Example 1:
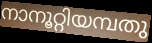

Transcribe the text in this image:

നാനൂറ്റിയമ്പതു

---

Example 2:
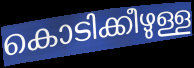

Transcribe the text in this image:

കൊടിക്കീഴുള്ള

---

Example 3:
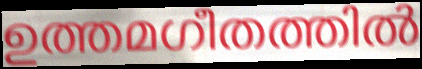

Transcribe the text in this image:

ഉത്തമഗീതത്തിൽ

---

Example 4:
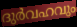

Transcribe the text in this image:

ദുർവഹവും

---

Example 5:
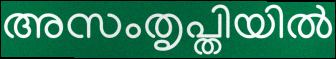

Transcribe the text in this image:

അസംതൃപ്തിയിൽ